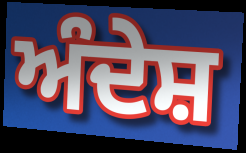
ਅੰਦੇਸ਼